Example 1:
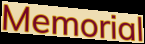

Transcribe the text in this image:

Memorial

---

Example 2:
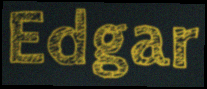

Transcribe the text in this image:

Edgar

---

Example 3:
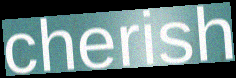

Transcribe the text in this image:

cherish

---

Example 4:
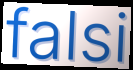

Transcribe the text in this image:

falsi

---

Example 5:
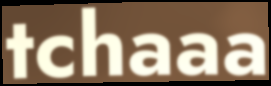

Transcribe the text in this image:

tchaaa